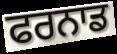
ਫਰਨਾਡ